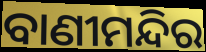
ବାଣୀମନ୍ଦିର